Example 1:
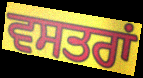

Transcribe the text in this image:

ਵਸਤਰਾਂ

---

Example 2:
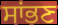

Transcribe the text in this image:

ਸਾਂਭਣ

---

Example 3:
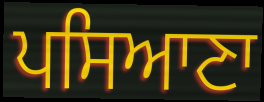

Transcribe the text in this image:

ਪਸਿਆਣਾ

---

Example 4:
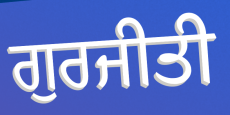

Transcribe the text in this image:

ਗੁਰਜੀਤੀ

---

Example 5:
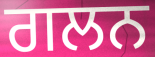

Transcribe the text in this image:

ਗਲਨ